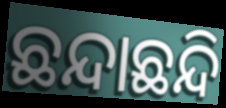
ଛନ୍ଦାଛନ୍ଦି